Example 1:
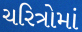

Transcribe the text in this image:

ચરિત્રોમાં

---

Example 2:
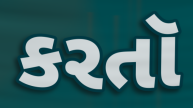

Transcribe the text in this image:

કરતૉ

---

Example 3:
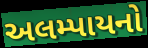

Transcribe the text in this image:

અલમ્પાયનો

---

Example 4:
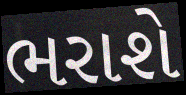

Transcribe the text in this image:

ભરાશે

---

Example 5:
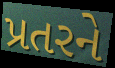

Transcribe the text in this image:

પ્રતરને